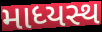
માધ્યસ્થ